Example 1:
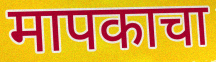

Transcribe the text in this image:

मापकाचा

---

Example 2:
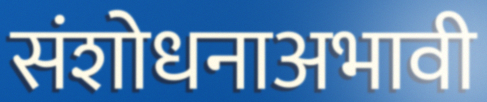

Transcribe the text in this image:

संशोधनाअभावी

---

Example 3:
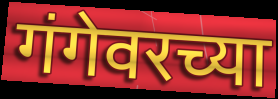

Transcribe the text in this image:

गंगेवरच्या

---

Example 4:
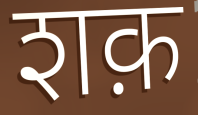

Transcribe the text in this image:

शक़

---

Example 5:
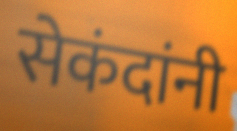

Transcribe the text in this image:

सेकंदांनी